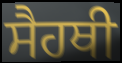
ਸੈਹਥੀ